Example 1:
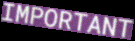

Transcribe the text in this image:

IMPORTANT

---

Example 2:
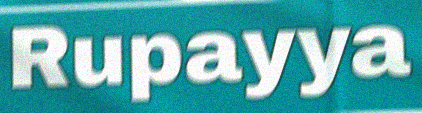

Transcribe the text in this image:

Rupayya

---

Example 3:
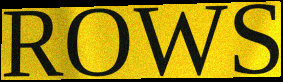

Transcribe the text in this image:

ROWS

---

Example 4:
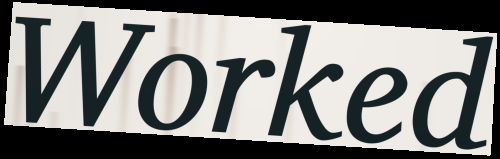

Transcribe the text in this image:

Worked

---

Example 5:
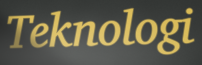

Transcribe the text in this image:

Teknologi